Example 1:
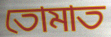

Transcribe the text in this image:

তোমাত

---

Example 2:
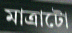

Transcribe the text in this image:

মাত্ৰাটো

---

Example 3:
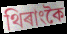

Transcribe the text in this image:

থিৰাংকৈ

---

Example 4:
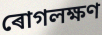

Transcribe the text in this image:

ৰোগলক্ষণ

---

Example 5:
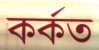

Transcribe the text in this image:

কৰ্কত